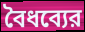
বৈধব্যের